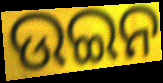
ଉଇନ